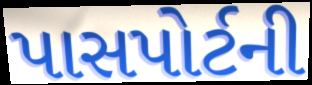
પાસપોર્ટની